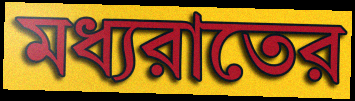
মধ্যরাতের